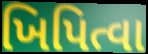
ખિપિત્વા